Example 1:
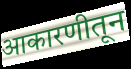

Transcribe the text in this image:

आकारणीतून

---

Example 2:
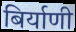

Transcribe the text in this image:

बिर्याणी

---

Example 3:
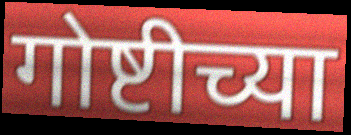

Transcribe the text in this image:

गोष्टीच्या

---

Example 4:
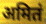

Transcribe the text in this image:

अमितं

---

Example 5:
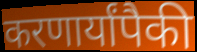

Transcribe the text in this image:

करणार्यांपैकी